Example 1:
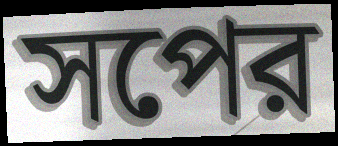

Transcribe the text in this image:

সপের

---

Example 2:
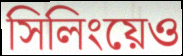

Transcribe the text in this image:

সিলিংয়েও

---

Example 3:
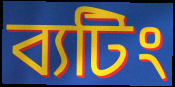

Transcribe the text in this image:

ব্যটিং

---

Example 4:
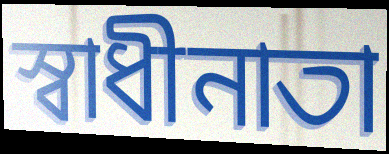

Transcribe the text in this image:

স্বাধীনাতা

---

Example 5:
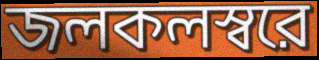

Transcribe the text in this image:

জলকলস্বরে